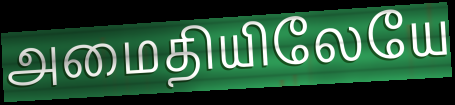
அமைதியிலேயே